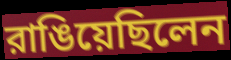
রাঙিয়েছিলেন